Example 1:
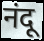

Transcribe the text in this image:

नंदू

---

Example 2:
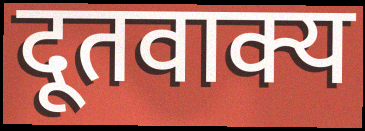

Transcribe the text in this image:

दूतवाक्य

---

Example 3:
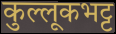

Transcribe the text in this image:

कुल्लूकभट्ट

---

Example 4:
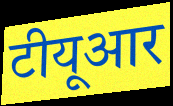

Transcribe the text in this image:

टीयूआर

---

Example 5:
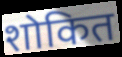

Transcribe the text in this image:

शोकित